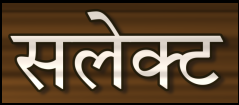
सलेक्ट